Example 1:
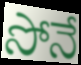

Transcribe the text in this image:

సోనే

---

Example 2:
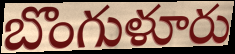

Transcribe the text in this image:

బొంగుళూరు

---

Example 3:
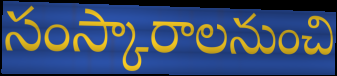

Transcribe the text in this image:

సంస్కారాలనుంచి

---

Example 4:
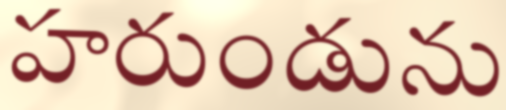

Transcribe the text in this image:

హరుండును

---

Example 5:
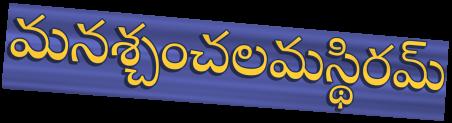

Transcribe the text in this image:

మనశ్చంచలమస్థిరమ్